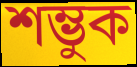
শম্ভুক